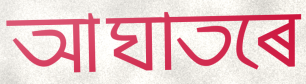
আঘাতৰে